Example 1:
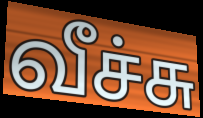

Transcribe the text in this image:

வீச்சு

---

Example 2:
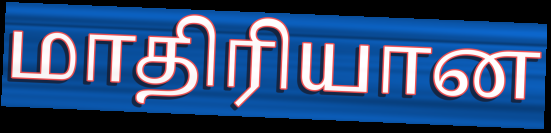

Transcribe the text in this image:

மாதிரியான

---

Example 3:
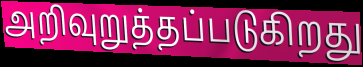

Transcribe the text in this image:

அறிவுறுத்தப்படுகிறது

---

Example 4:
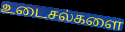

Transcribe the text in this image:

உடைசல்களை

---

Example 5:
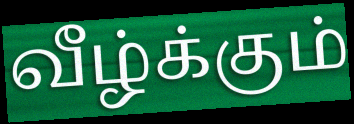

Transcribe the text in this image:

வீழ்க்கும்